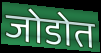
जोडोत